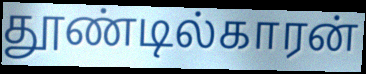
தூண்டில்காரன்